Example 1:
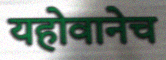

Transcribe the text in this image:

यहोवानेच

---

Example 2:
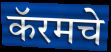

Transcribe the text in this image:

कॅरमचे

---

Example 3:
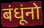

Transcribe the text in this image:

बंधूंनो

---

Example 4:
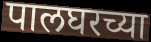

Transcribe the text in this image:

पालघरच्या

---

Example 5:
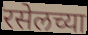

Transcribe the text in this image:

रसेलच्या